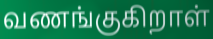
வணங்குகிறாள்